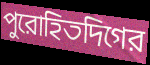
পুরোহিতদিগের